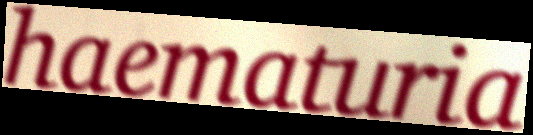
haematuria